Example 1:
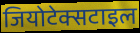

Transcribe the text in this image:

जियोटेक्सटाइल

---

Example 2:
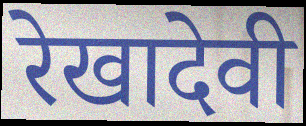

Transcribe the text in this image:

रेखादेवी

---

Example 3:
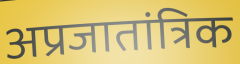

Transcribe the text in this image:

अप्रजातांत्रिक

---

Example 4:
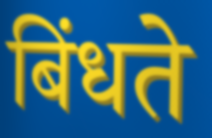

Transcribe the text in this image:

बिंधते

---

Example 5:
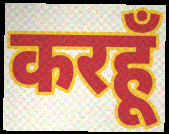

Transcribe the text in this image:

करहूँ